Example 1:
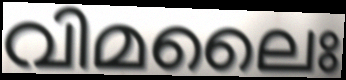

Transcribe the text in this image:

വിമലൈഃ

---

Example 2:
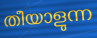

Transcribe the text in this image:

തീയാളുന്ന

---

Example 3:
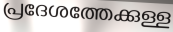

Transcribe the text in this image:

പ്രദേശത്തേക്കുള്ള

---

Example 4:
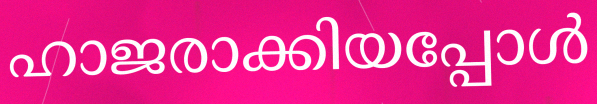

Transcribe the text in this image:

ഹാജരാക്കിയപ്പോൾ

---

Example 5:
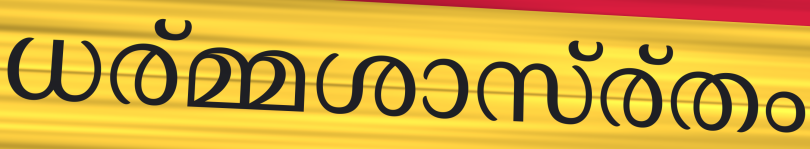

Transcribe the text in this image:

ധര്മ്മശാസ്ര്തം